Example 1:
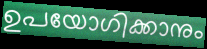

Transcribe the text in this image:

ഉപയോഗിക്കാനും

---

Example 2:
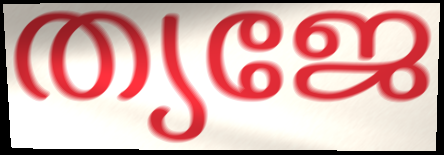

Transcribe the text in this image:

ത്യജേ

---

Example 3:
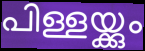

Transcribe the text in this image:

പിള്ളയ്ക്കും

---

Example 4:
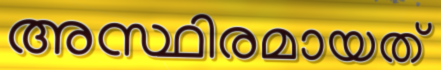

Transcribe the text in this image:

അസ്ഥിരമായത്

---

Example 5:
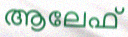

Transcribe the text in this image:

ആലേഫ്